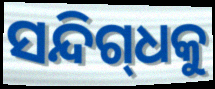
ସନ୍ଦିଗ୍‌ଧକୁ